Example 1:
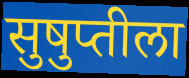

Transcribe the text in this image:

सुषुप्तीला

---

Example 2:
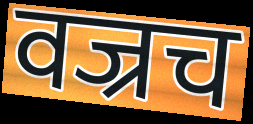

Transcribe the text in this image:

वज्रच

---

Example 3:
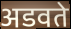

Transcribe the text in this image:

अडवते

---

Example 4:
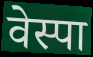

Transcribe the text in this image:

वेस्पा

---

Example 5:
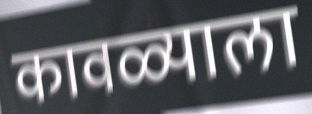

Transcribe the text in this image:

कावळ्याला